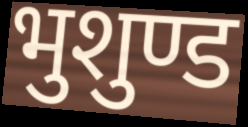
भुशुण्ड